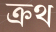
ক্রথ